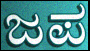
ಜಪ